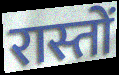
रास्‍तों